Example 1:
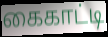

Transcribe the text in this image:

கைகாட்டி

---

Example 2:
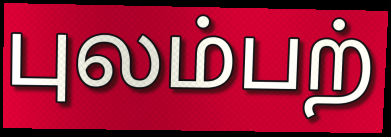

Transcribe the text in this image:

புலம்பற்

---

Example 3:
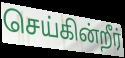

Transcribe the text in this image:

செய்கின்றீர்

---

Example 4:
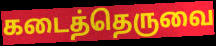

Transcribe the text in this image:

கடைத்தெருவை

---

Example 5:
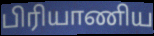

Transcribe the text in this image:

பிரியாணிய